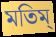
মতিম্